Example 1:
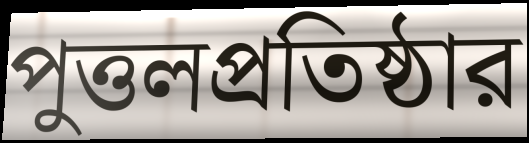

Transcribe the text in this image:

পুত্তলপ্রতিষ্ঠার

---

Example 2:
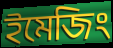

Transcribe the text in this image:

ইমেজিং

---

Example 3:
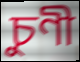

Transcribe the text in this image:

চুণী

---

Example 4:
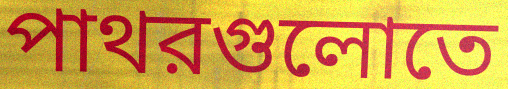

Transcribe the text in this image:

পাথরগুলোতে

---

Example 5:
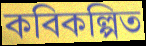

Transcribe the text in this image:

কবিকল্পিত